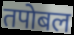
तपोबल